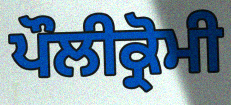
ਪੌਲੀਕ੍ਰੋਮੀ